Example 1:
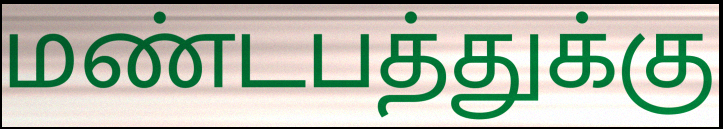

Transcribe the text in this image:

மண்டபத்துக்கு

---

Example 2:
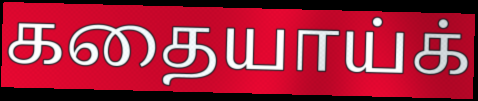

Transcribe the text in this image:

கதையாய்க்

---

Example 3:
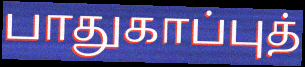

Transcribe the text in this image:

பாதுகாப்புத்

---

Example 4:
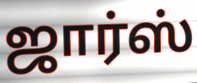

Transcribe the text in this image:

ஜார்ஸ்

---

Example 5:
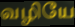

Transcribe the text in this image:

வழியே